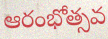
ఆరంభోత్సవ